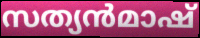
സത്യൻമാഷ്